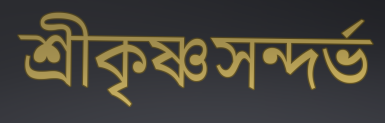
শ্রীকৃষ্ণসন্দর্ভ